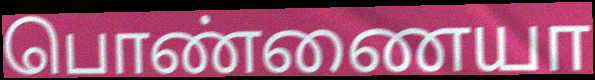
பொண்ணையா